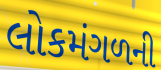
લોકમંગળની